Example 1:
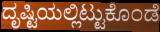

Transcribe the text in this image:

ದೃಷ್ಟಿಯಲ್ಲಿಟ್ಟುಕೊಂಡೆ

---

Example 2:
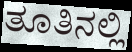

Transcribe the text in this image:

ತೂತಿನಲ್ಲಿ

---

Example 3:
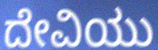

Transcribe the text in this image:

ದೇವಿಯು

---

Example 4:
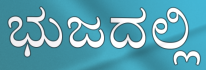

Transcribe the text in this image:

ಭುಜದಲ್ಲಿ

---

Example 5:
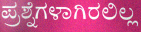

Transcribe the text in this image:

ಪ್ರಶ್ನೆಗಳಾಗಿರಲಿಲ್ಲ